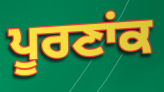
ਪੂਰਣਾਂਕ